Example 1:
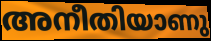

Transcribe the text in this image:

അനീതിയാണു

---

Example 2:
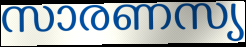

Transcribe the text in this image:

സാരണസ്യ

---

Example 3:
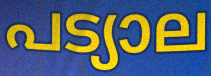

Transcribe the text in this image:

പട്യാല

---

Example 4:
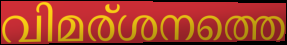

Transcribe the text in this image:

വിമര്ശനത്തെ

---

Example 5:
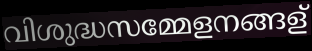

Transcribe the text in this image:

വിശുദ്ധസമ്മേളനങ്ങള്